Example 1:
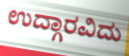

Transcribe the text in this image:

ಉದ್ಗಾರವಿದು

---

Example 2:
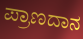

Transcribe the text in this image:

ಪ್ರಾಣದಾನ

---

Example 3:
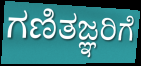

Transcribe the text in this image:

ಗಣಿತಜ್ಞರಿಗೆ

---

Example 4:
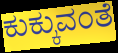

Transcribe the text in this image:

ಕುಕ್ಕುವಂತೆ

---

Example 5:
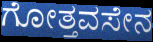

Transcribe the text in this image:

ಗೋತ್ತವಸೇನ